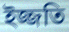
ইজ্জতি